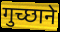
गुच्छाने